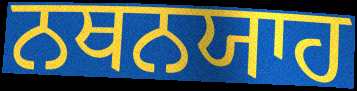
ਨਥਨਯਾਹ